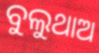
ବୁଲୁଥାଅ